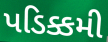
પડિક્કમી